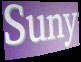
Suny